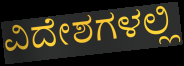
ವಿದೇಶಗಳಲ್ಲಿ